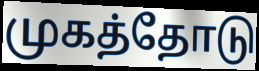
முகத்தோடு